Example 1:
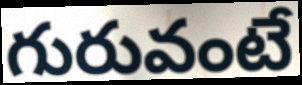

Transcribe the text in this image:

గురువంటే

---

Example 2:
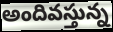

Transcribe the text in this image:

అందివస్తున్న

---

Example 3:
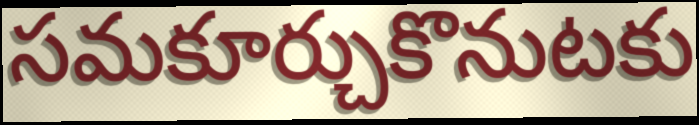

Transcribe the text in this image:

సమకూర్చుకొనుటకు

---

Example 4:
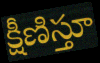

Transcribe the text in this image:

క్షీణిస్తూ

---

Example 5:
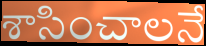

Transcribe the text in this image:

శాసించాలనే